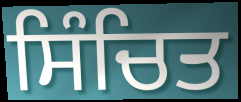
ਸਿੰਚਿਤ